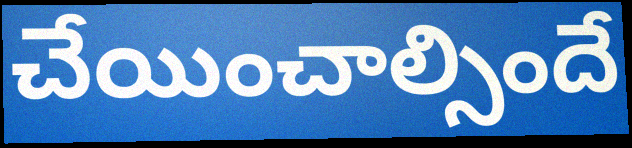
చేయించాల్సిందే